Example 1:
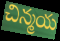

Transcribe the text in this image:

చిన్మయ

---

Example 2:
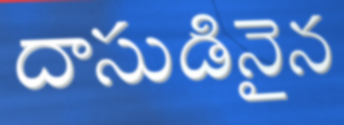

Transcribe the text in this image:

దాసుడినైన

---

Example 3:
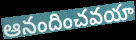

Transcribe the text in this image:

ఆనందించవయా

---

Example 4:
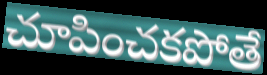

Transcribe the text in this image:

చూపించకపోతే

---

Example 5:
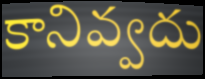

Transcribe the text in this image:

కానివ్వదు